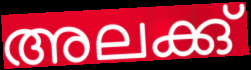
അലക്കു്